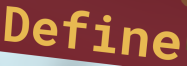
Define